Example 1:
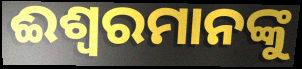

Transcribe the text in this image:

ଈଶ୍ୱରମାନଙ୍କୁ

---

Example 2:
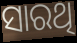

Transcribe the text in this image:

ସାରଥି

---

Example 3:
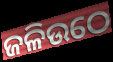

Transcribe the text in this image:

ଜଳିଉଠେ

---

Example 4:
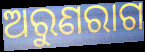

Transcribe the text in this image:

ଅରୁଣରାଗ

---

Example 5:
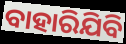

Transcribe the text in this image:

ବାହାରିଯିବି